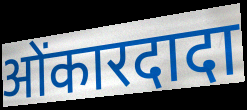
ओंकारदादा